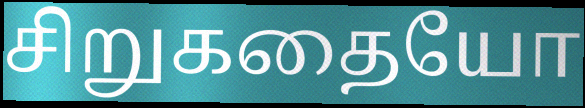
சிறுகதையோ